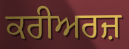
ਕਰੀਅਰਜ਼